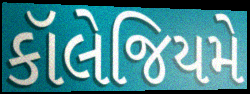
કૉલેજિયમે